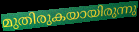
മുതിരുകയായിരുന്നു